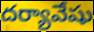
దర్యావేషు